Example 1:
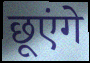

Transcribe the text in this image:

छूएंगे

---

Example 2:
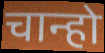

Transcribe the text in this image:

चान्हो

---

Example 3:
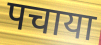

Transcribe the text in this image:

पचाया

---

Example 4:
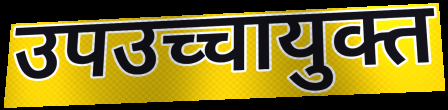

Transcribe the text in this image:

उपउच्चायुक्त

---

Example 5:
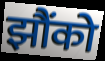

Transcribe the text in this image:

झौंको